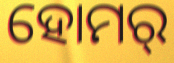
ହୋମର୍